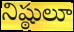
నిష్ఠులూ